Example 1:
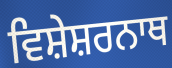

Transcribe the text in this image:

ਵਿਸ਼ੇਸ਼ਰਨਾਥ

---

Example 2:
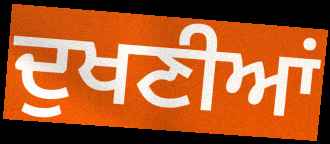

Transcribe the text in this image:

ਦੁਖਣੀਆਂ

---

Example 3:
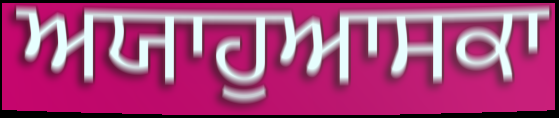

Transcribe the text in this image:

ਅਯਾਹੁਆਸਕਾ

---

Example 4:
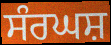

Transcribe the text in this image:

ਸੰਰਘਸ਼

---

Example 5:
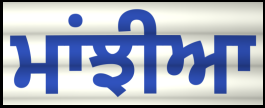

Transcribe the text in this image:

ਮਾਂਝੀਆ